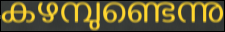
കഴമ്പുണ്ടെന്നു